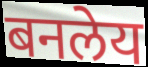
बनलेय